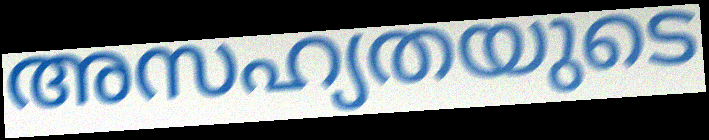
അസഹ്യതയുടെ